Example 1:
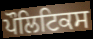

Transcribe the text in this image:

ਪੌਲਿਟਿਕਸ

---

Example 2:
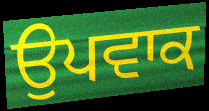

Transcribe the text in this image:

ਉਪਵਾਕ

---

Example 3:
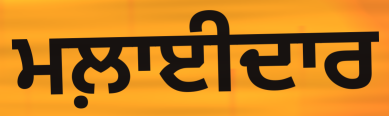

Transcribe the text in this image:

ਮਲ਼ਾਈਦਾਰ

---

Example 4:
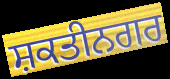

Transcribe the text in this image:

ਸ਼ਕਤੀਨਗਰ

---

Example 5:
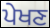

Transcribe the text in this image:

ਪੇਖਣ